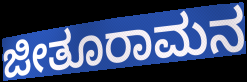
ಜೀತೂರಾಮನ